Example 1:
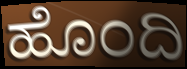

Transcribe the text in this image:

ಹೊಂದಿ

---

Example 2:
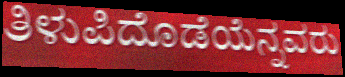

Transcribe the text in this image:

ತಿಳುಪಿದೊಡೆಯೆನ್ನವರು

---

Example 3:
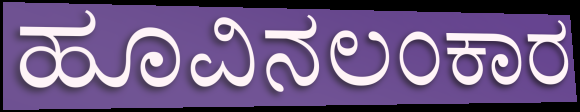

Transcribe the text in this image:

ಹೂವಿನಲಂಕಾರ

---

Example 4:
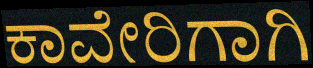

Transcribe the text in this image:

ಕಾವೇರಿಗಾಗಿ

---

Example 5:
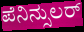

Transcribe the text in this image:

ಪೆನಿನ್ಸುಲರ್